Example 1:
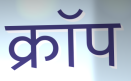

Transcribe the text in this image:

क्रॉप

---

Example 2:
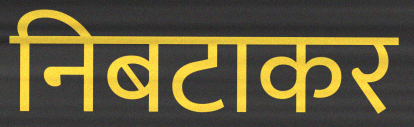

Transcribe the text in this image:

निबटाकर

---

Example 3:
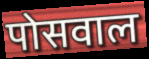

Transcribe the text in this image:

पोसवाल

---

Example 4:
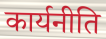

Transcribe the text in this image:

कार्यनीति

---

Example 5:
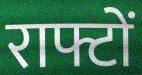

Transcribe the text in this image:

राफ्टों